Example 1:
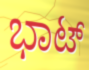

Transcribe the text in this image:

ಭಾಟ್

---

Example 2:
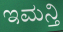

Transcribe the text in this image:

ಇಮನ್ತಿ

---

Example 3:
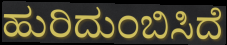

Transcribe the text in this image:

ಹುರಿದುಂಬಿಸಿದೆ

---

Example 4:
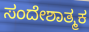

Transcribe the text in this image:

ಸಂದೇಶಾತ್ಮಕ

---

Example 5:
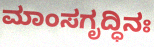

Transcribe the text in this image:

ಮಾಂಸಗೃದ್ಧಿನಃ